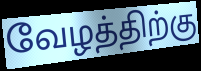
வேழத்திற்கு